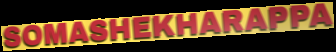
SOMASHEKHARAPPA